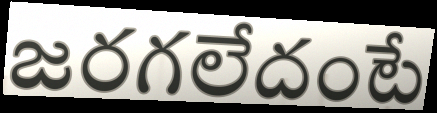
జరగలేదంటే